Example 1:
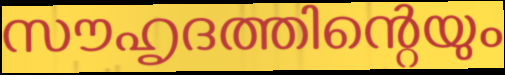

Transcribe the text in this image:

സൗഹൃദത്തിന്റെയും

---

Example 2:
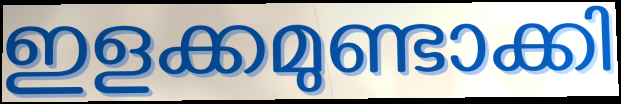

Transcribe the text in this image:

ഇളക്കമുണ്ടാക്കി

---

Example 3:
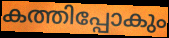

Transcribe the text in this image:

കത്തിപ്പോകും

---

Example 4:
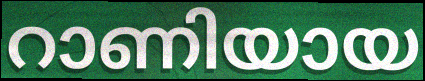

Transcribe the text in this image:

റാണിയായ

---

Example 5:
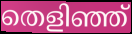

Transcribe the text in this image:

തെളിഞ്ഞ്